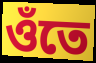
ওঁতে